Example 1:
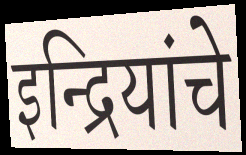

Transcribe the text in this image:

इन्द्रियांचे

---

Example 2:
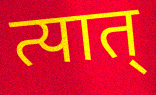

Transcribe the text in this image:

त्यात्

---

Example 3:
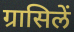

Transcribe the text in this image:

ग्रासिलें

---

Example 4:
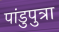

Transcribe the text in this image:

पांडुपुत्रा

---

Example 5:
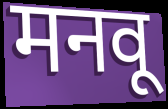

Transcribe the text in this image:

मनवू